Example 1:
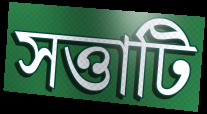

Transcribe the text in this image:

সত্তাটি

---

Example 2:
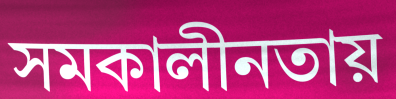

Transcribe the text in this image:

সমকালীনতায়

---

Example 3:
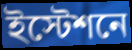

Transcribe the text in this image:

ইস্টেশনে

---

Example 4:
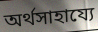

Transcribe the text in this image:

অর্থসাহায্যে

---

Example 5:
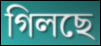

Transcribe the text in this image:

গিলছে